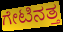
ಗೇಟಿನತ್ತ